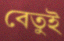
বেতুই